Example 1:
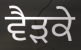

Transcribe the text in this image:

ਵੈੜਕੇ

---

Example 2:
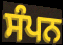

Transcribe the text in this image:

ਸੰਪਨ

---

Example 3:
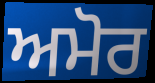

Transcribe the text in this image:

ਅਮੋਰ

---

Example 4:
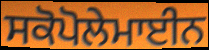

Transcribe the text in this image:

ਸਕੋਪੋਲੇਮਾਈਨ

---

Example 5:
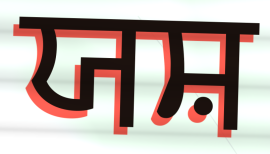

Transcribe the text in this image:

ਯਸ਼